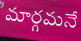
మార్గమనే